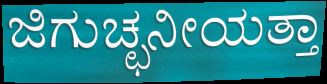
ಜಿಗುಚ್ಛನೀಯತ್ತಾ